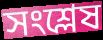
সংশ্লেষ